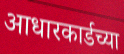
आधारकार्डच्या